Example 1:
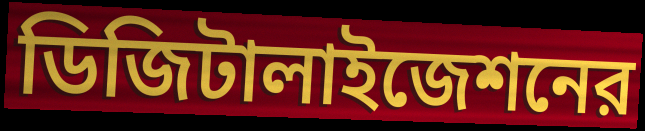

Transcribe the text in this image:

ডিজিটালাইজেশনের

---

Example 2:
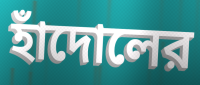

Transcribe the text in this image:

হাঁদোলের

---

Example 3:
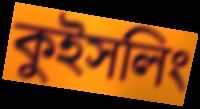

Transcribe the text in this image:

কুইসলিং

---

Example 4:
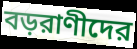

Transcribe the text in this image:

বড়রাণীদের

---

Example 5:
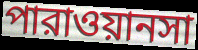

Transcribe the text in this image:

পারাওয়ানসা